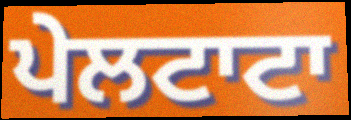
ਪੇਲਟਾਟਾ